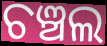
ଚଞ୍ଚଲ